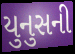
યુનુસની